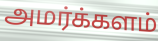
அமர்க்களம்